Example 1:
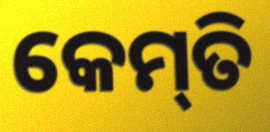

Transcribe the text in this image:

କେମ୍‍ତି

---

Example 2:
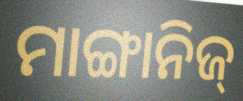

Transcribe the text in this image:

ମାଙ୍ଗାନିଜ୍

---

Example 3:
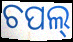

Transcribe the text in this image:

ଚପଲ୍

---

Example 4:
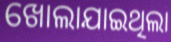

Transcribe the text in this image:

ଖୋଲାଯାଇଥିଲା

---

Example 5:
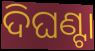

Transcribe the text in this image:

ଦିଘଣ୍ଟା